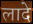
लादे